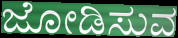
ಜೋಡಿಸುವ